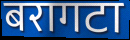
बरागटा